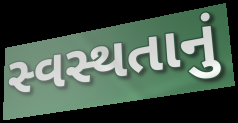
સ્વસ્થતાનું